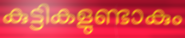
കുട്ടികളുണ്ടാകും